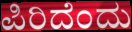
ಪಿರಿದೆಂದು